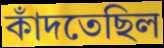
কাঁদতেছিল